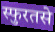
स्फुरतसे